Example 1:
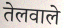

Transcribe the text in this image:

तेलवाले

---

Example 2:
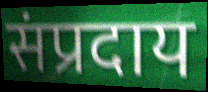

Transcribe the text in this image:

संप्रदाय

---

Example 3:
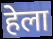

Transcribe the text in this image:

हेला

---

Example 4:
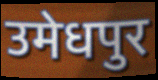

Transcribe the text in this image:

उमेधपुर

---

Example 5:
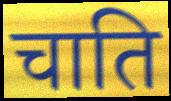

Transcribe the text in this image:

चाति